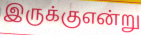
இருக்குஎன்று